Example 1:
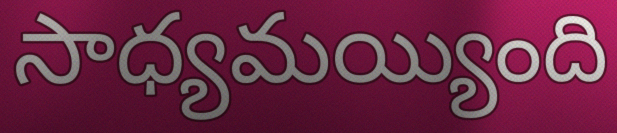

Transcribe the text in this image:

సాధ్యమయ్యింది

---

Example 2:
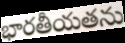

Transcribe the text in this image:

భారతీయతను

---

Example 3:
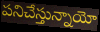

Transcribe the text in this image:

పనిచేస్తున్నాయో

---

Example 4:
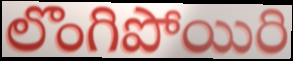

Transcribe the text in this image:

లొంగిపోయిరి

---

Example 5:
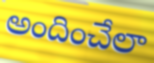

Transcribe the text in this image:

అందించేలా